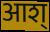
आश्